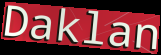
Daklan